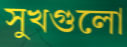
সুখগুলো